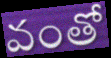
వంతో